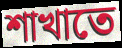
শাখাতে